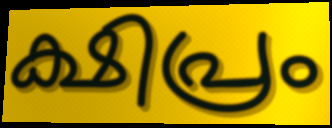
ക്ഷിപ്രം